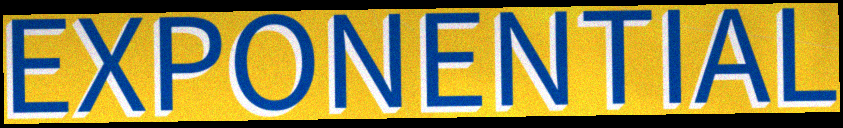
EXPONENTIAL